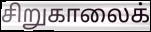
சிறுகாலைக்